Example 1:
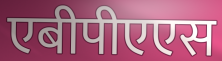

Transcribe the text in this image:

एबीपीएएस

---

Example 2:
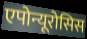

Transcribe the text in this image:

एपोन्यूरोसिस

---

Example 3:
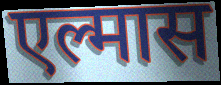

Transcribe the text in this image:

एल्मास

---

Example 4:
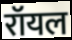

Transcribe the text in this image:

रॉयल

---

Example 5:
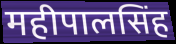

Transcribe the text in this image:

महीपालसिंह